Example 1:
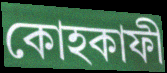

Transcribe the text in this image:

কোহকাফী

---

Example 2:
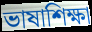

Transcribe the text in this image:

ভাষাশিক্ষা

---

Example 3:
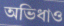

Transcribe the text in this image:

অভিধাও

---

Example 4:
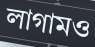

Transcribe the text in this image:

লাগামও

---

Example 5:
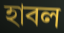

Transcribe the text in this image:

হাবল